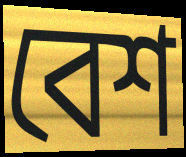
বেশ